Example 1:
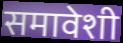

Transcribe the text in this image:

समावेशी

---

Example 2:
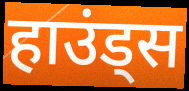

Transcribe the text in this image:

हाउंड्स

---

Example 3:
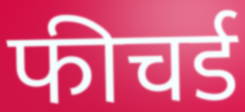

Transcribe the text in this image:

फीचर्ड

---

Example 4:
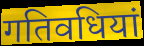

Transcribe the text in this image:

गतिवधियां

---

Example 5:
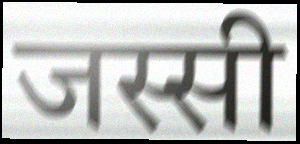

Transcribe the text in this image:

जस्सी